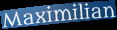
Maximilian